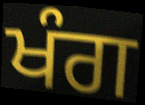
ਖੰਗ